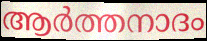
ആർത്തനാദം